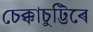
চেক্কাচুট্টিৰে